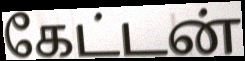
கேட்டன்